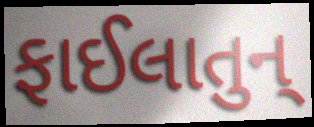
ફાઈલાતુન્